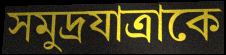
সমুদ্রযাত্রাকে